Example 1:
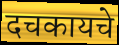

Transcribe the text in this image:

दचकायचे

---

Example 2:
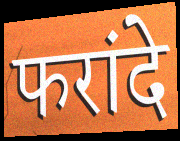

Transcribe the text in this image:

फरांदे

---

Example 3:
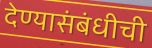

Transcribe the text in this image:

देण्यासंबंधीची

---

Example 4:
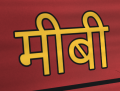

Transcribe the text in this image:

मीबी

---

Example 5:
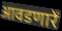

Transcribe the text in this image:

आवडणारें